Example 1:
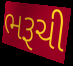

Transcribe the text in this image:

ભરૂચી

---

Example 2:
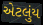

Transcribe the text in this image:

એટલુંય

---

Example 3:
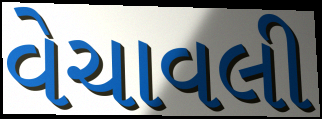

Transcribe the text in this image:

વેચાવલી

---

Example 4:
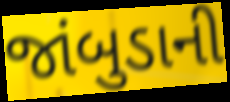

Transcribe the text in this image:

જાંબુડાની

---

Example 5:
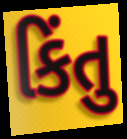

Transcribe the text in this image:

કિંતુ